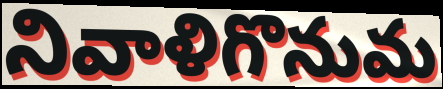
నివాళిగొనుమ